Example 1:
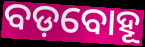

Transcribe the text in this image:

ବଡ଼ବୋହୂ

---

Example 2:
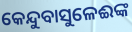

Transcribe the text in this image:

କେନ୍ଦୁବାସୁଳେଈଙ୍କ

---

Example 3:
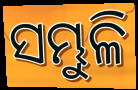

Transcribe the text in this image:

ସମ୍ଭୁଳି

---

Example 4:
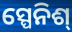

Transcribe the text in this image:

ସ୍ପେନିଶ୍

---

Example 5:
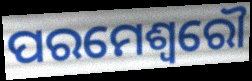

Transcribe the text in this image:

ପରମେଶ୍ଵରୌ